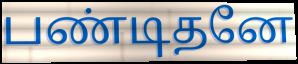
பண்டிதனே